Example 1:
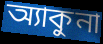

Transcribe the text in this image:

অ্যাকুনা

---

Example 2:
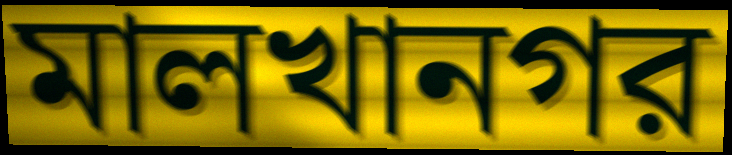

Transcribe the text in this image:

মালখানগর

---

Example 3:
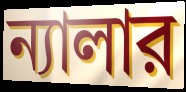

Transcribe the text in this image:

ন্যালার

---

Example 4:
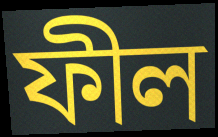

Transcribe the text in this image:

ফীল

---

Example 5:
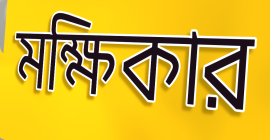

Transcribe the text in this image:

মক্ষিকার